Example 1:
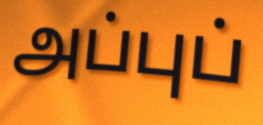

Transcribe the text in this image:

அப்புப்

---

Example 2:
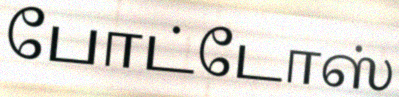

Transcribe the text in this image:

போட்டோஸ்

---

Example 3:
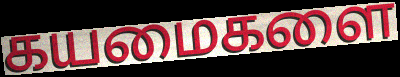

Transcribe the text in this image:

கயமைகளை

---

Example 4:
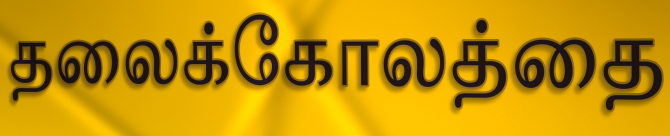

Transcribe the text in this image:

தலைக்கோலத்தை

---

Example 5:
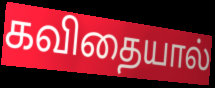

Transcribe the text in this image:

கவிதையால்